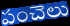
పంచెలు